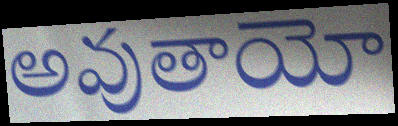
అవుతాయో